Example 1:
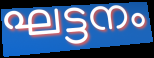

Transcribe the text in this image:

ഘട്ടനം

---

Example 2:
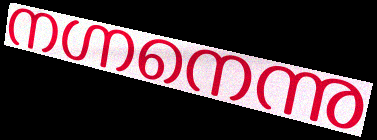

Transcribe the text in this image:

നഗ്നനെന്നു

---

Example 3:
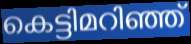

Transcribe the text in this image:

കെട്ടിമറിഞ്ഞ്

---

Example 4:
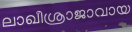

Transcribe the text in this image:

ലാഖീശ്രാജാവായ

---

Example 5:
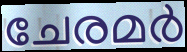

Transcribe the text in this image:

ചേരമർ